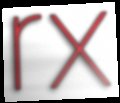
rx